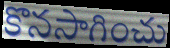
కొనసాగించు